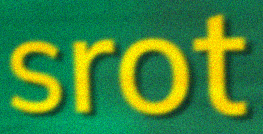
srot